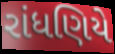
રાંધણિયે